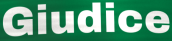
Giudice